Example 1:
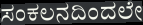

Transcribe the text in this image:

ಸಂಕಲನದಿಂದಲೇ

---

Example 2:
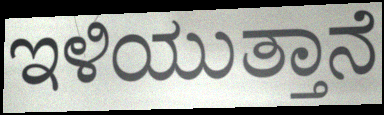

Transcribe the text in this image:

ಇಳಿಯುತ್ತಾನೆ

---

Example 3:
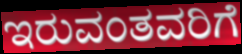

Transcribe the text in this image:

ಇರುವಂತವರಿಗೆ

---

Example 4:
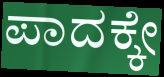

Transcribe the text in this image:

ಪಾದಕ್ಕೇ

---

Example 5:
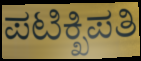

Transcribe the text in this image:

ಪಟಿಕ್ಖಿಪತಿ